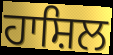
ਹਾਸ਼ਿਲ